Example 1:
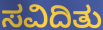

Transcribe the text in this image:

ಸವಿದಿತು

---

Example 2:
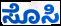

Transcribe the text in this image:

ಸೊಸಿ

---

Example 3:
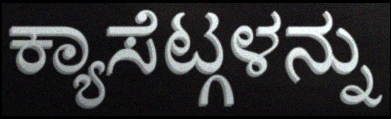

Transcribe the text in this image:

ಕ್ಯಾಸೆಟ್ಗಳನ್ನು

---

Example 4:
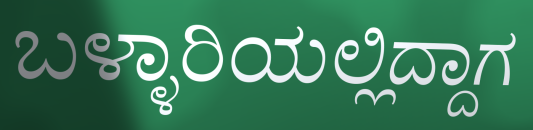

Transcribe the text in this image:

ಬಳ್ಳಾರಿಯಲ್ಲಿದ್ದಾಗ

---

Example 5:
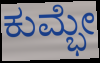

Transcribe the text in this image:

ಕುಮ್ಭೇ